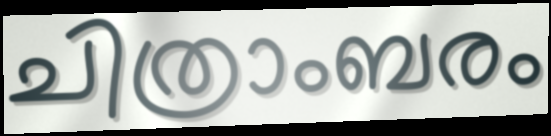
ചിത്രാംബരം